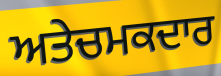
ਅਤੇਚਮਕਦਾਰ